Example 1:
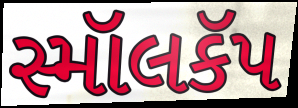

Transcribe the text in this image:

સ્મૉલકૅપ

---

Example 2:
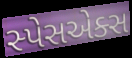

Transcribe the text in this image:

સ્પેસએક્સ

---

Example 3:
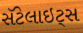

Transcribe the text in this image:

સૅટેલાઇટ્સ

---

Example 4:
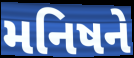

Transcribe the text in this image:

મનિષને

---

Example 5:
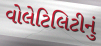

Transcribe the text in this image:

વોલેટિલિટીનું